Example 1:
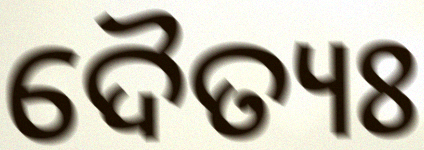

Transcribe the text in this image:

ଦୈତ୍ୟଃ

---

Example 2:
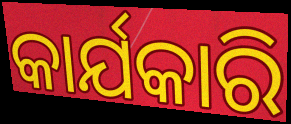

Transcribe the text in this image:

କାର୍ଯକାରି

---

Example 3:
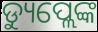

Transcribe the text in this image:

ଡ୍ୟୁପ୍ଲେଙ୍କ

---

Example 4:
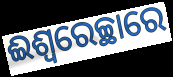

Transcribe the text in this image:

ଈଶ୍ୱରେଚ୍ଛାରେ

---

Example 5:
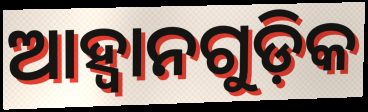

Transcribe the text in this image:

ଆହ୍ବାନଗୁଡ଼ିକ